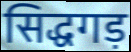
सिद्धगड़